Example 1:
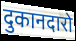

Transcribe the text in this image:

दुकानदारो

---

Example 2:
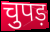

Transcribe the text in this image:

चुपड़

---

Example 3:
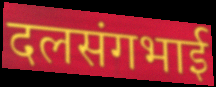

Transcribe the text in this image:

दलसंगभाई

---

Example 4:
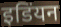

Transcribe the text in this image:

इडिंयन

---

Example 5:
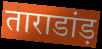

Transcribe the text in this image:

ताराडांड़